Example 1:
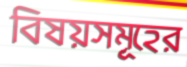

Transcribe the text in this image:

বিষয়সমূহের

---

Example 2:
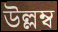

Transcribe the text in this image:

উল্লম্ব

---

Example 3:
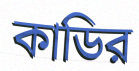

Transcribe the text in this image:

কাডির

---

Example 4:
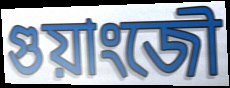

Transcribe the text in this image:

গুয়াংজৌ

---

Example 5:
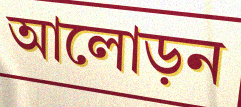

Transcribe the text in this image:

আলোড়ন